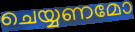
ചെയ്യണമോ